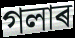
গলাৰ